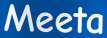
Meeta